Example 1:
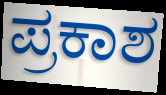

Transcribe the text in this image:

ಪ್ರಕಾಶ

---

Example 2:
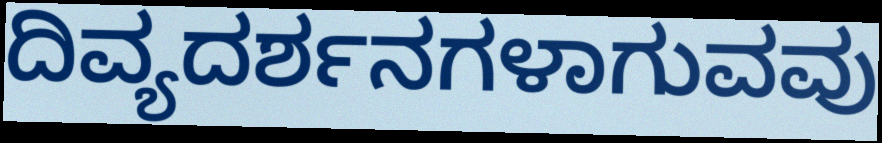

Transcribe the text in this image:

ದಿವ್ಯದರ್ಶನಗಳಾಗುವವು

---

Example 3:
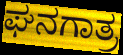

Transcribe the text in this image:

ಘನಗಾತ್ರ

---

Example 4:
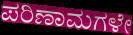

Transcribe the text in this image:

ಪರಿಣಾಮಗಳೇ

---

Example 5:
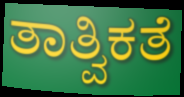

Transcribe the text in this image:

ತಾತ್ವಿಕತೆ